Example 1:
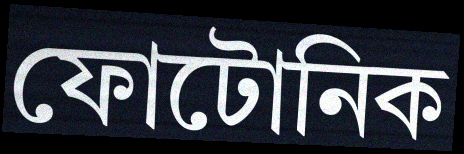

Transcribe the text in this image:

ফোটোনিক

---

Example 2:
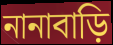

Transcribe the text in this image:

নানাবাড়ি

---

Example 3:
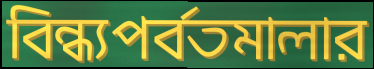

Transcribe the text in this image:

বিন্ধ্যপর্বতমালার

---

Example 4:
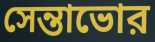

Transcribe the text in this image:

সেন্তাভোর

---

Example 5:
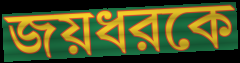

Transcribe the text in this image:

জয়ধরকে